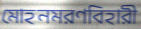
মোহনমরণবিহারী